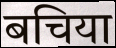
बचिया